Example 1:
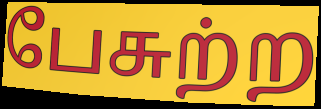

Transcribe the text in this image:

பேசுற்ற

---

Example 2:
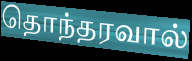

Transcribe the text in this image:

தொந்தரவால்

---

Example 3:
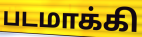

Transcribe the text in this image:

படமாக்கி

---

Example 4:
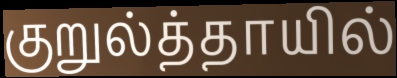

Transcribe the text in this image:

குறுல்த்தாயில்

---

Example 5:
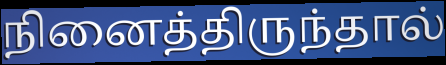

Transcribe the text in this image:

நினைத்திருந்தால்